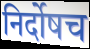
निर्दोषच